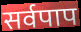
सर्वपाप